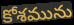
కోశమును